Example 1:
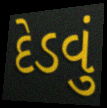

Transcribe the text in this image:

દેડવું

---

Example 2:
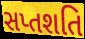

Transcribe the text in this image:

સપ્તશતિ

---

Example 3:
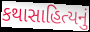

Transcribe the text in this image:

કથાસાહિત્યનું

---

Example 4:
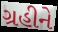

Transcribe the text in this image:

ગ્રહીને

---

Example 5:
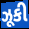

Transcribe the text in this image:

ઝૂકી